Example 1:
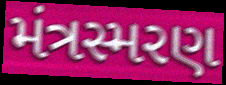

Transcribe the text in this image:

મંત્રસ્મરણ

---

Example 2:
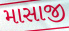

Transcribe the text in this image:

માસાજી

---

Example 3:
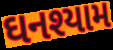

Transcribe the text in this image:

ઘનશ્યામ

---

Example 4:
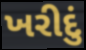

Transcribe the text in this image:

ખરીદું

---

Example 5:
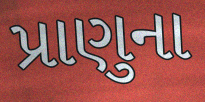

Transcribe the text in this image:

પ્રાણુના